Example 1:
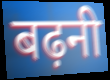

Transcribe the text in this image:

बढ़नी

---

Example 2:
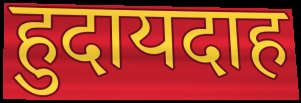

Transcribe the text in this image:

हुदायदाह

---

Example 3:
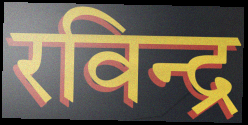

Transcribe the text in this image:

रविन्द्र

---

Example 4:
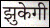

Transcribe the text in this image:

झुकेगी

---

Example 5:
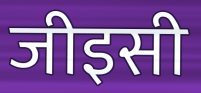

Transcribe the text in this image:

जीइसी